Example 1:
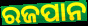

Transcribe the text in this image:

ରଜପାନ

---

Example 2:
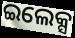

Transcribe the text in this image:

ଇଲେକ୍ସ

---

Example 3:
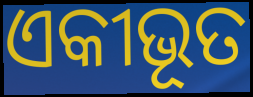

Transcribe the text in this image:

ଏକୀଭୂତ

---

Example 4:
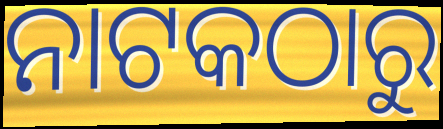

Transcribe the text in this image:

ନାଟକଠାରୁ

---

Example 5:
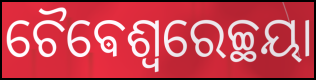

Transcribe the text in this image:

ଚୈଵେଶ୍ଵରେଚ୍ଛୟା